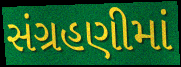
સંગ્રહણીમાં